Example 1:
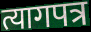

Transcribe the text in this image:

त्यागपत्र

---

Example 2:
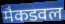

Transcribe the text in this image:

मैकडवल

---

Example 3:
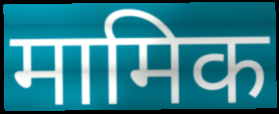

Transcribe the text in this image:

मामिक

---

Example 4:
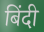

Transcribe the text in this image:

बिंदी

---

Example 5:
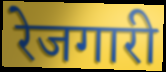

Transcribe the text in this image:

रेजगारी